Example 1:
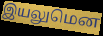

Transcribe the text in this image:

இயலுமென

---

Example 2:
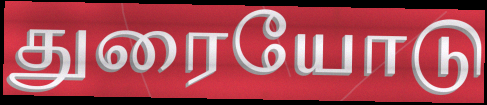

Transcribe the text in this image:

துரையோடு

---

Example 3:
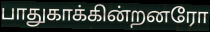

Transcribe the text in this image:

பாதுகாக்கின்றனரோ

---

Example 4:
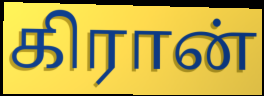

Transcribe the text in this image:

கிரான்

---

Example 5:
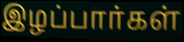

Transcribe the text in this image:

இழப்பார்கள்